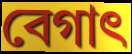
বেগাৎ